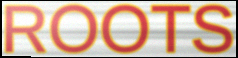
ROOTS